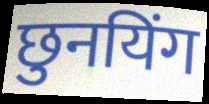
छुनयिंग